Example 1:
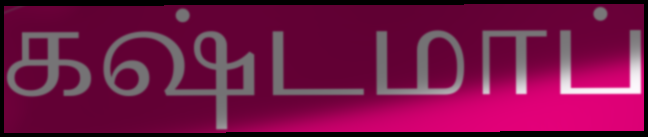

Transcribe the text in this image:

கஷ்டமாப்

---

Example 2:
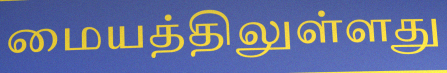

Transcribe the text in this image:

மையத்திலுள்ளது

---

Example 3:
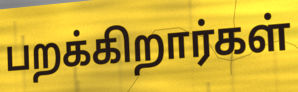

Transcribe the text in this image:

பறக்கிறார்கள்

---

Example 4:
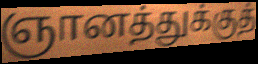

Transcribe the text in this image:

ஞானத்துக்குத்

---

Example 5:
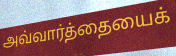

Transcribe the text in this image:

அவ்வார்த்தையைக்